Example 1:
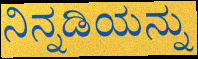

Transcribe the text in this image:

ನಿನ್ನಡಿಯನ್ನು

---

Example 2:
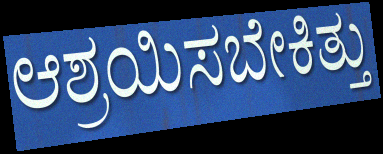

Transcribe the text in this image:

ಆಶ್ರಯಿಸಬೇಕಿತ್ತು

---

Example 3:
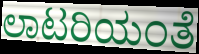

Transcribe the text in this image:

ಲಾಟರಿಯಂತೆ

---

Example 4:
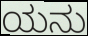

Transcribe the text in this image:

ಯನು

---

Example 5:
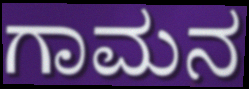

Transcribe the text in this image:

ಗಾಮನ